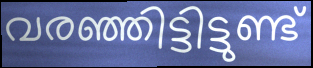
വരഞ്ഞിട്ടിട്ടുണ്ട്